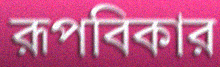
রূপবিকার